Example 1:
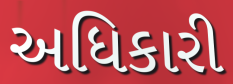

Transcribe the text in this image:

અધિકારી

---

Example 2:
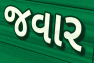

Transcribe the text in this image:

જવાર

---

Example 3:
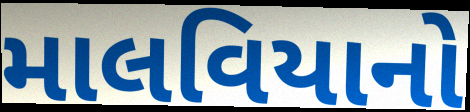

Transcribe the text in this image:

માલવિયાનો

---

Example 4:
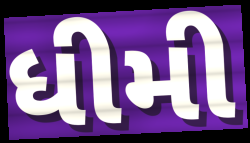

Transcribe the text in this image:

ધીમી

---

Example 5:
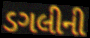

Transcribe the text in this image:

ડગલીની